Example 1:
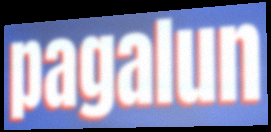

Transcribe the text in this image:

pagalun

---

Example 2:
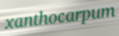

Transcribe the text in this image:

xanthocarpum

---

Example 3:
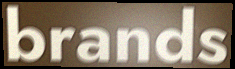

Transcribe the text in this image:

brands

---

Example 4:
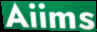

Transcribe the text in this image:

Aiims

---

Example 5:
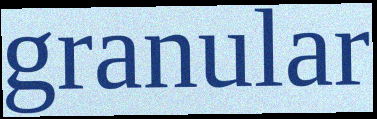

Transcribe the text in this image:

granular